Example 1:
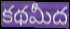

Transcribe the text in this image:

కథమీద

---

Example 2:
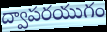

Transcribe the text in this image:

ద్వాపరయుగం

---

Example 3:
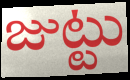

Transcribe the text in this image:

జుట్టు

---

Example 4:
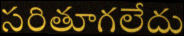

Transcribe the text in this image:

సరితూగలేదు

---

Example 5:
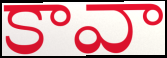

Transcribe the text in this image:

కావా